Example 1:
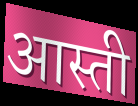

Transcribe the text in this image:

आस्ती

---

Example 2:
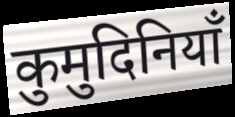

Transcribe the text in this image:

कुमुदिनियाँ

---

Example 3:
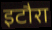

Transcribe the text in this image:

इटौरा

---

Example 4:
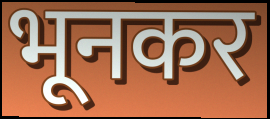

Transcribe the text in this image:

भूनकर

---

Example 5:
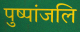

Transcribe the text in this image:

पुष्पांजलि